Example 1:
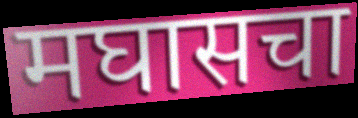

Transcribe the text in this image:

मघासचा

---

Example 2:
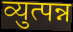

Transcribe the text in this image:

व्युत्पन्न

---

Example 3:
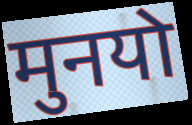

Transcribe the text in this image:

मुनयो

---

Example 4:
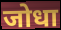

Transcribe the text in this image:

जोधा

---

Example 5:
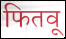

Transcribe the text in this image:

फितवू